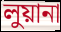
লুয়ানা